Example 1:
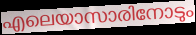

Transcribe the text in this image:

എലെയാസാരിനോടും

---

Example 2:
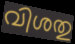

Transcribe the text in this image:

വിശതു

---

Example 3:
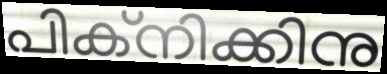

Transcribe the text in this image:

പിക്നിക്കിനു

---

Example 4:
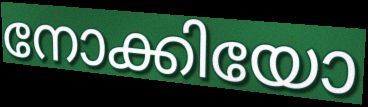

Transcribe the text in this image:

നോക്കിയോ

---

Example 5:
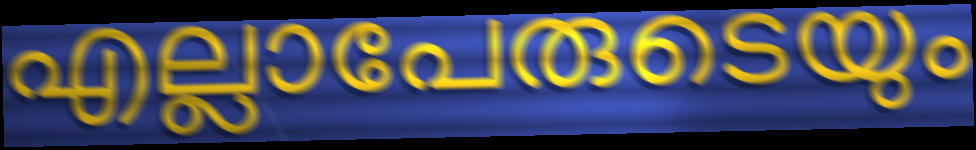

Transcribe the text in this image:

എല്ലാപേരുടെയും